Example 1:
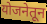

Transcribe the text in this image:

योजनेतून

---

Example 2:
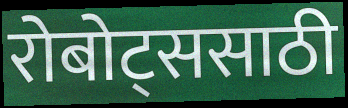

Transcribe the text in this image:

रोबोट्ससाठी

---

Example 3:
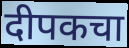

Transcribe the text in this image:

दीपकचा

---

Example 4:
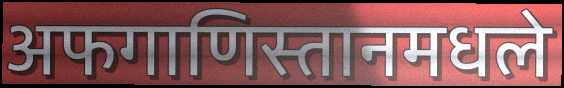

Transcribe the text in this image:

अफगाणिस्तानमधले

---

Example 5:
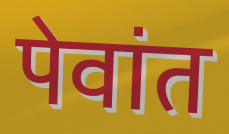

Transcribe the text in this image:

पेवांत